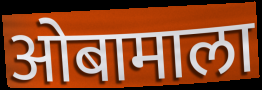
ओबामाला